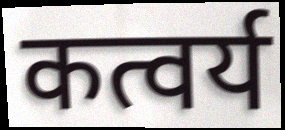
कत्वर्य